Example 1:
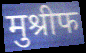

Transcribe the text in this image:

मुश्रीफ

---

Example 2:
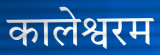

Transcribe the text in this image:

कालेश्वरम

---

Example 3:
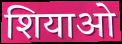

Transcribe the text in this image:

शियाओ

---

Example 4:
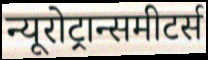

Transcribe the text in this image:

न्यूरोट्रान्समीटर्स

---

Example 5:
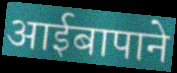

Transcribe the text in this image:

आईबापाने